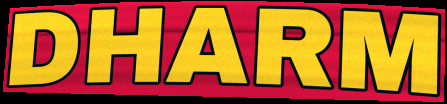
DHARM